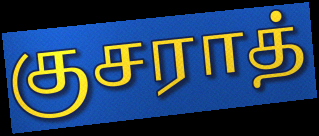
குசராத்